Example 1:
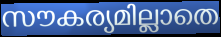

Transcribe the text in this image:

സൗകര്യമില്ലാതെ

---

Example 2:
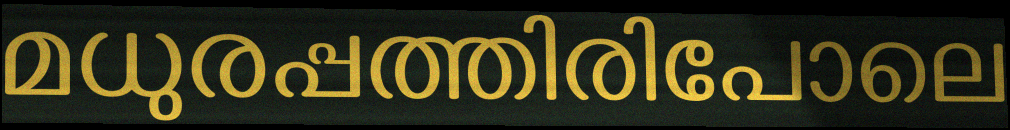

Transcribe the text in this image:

മധുരപ്പത്തിരിപോലെ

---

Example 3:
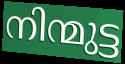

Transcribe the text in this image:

നിന്മുട്ട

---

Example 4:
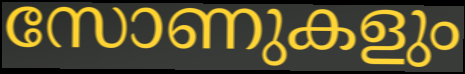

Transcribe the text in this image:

സോണുകളും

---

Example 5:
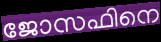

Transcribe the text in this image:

ജോസഫിനെ